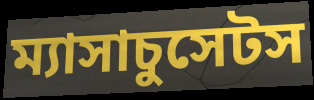
ম্যাসাচুসেটস